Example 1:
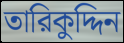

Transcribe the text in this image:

তারিকুদ্দিন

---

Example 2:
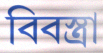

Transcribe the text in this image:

বিবস্ত্রা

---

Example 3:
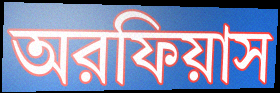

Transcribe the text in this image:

অরফিয়াস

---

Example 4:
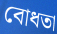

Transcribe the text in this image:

বোধতা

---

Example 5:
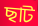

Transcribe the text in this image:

ছাট